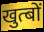
खुत्बों